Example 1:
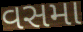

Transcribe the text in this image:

વસમા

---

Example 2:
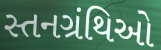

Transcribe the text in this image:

સ્તનગ્રંથિઓ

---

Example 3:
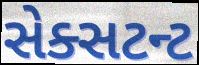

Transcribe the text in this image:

સેક્સટન્ટ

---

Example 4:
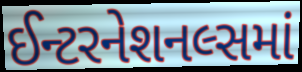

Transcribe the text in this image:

ઈન્ટરનેશનલ્સમાં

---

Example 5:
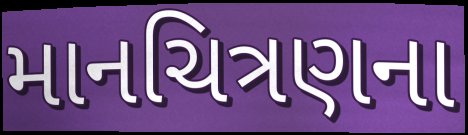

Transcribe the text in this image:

માનચિત્રણના